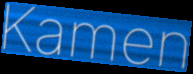
Kamen